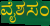
ವೈಶಸಂ